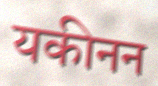
यकीनन